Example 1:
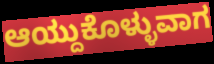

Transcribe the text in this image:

ಆಯ್ದುಕೊಳ್ಳುವಾಗ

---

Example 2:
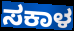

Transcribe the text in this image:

ಸಕಾಳ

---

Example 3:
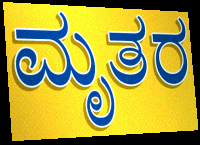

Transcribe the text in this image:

ಮೃತರ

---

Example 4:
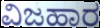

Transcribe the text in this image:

ವಿಜಹಾರ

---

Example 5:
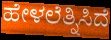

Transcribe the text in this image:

ಹೇಳಲೆತ್ನಿಸಿದೆ